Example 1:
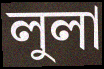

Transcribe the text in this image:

লুলা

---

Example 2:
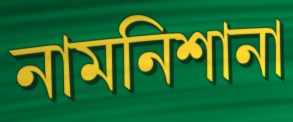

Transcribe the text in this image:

নামনিশানা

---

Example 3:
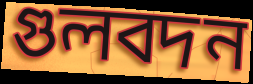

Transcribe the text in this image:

গুলবদন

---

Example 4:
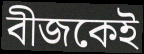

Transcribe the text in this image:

বীজকেই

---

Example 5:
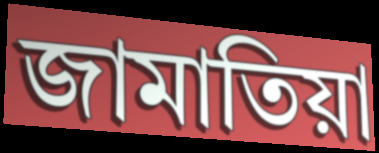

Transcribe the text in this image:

জামাতিয়া